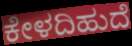
ಕೇಳದಿಹುದೆ